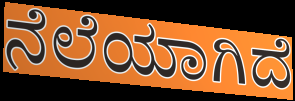
ನೆಲೆಯಾಗಿದೆ